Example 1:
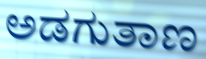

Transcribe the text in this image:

ಅಡಗುತಾಣ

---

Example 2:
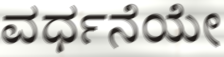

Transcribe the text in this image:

ವರ್ಧನೆಯೇ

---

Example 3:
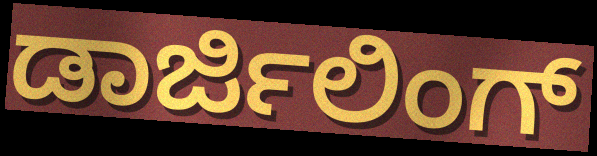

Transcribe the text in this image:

ಡಾರ್ಜಿಲಿಂಗ್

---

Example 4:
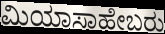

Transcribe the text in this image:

ಮಿಯಾಸಾಹೇಬರು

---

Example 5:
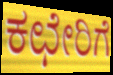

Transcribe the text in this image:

ಕಛೇರಿಗೆ